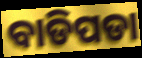
ବାଡିପଡା